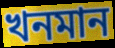
খনমান